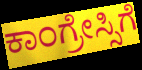
ಕಾಂಗ್ರೇಸ್ಸಿಗೆ